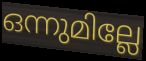
ഒന്നുമില്ലേ